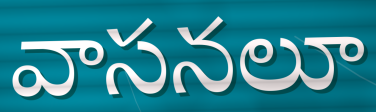
వాసనలూ